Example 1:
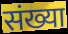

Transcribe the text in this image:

संख्‍या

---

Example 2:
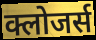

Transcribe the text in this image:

क्लोजर्स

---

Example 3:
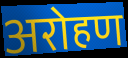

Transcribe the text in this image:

अरोहण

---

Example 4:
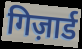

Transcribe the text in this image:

गिज़ार्ड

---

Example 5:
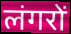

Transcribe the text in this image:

लंगरों